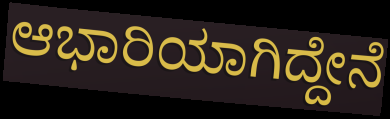
ಆಭಾರಿಯಾಗಿದ್ದೇನೆ